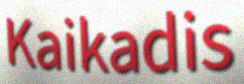
Kaikadis